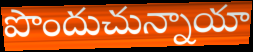
పొందుచున్నాయా